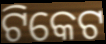
ଟିକେଟ